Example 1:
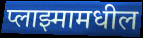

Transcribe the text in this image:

प्लाझ्मामधील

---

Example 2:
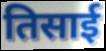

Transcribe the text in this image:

तिसाई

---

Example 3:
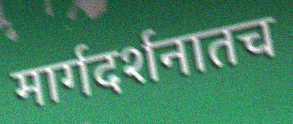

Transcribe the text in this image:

मार्गदर्शनातच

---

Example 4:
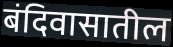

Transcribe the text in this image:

बंदिवासातील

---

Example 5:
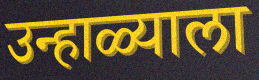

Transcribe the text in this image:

उन्हाळ्याला